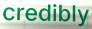
credibly